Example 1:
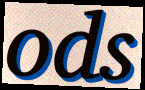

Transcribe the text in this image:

ods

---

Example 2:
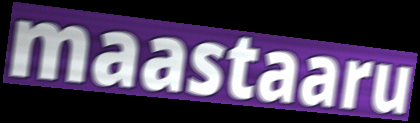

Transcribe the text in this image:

maastaaru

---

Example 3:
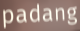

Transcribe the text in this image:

padang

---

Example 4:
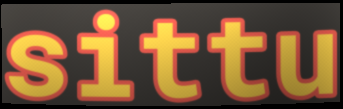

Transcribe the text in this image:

sittu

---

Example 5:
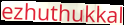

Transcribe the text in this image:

ezhuthukkal